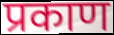
प्रकाण